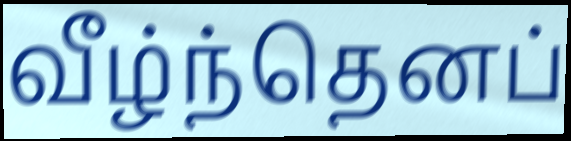
வீழ்ந்தெனப்